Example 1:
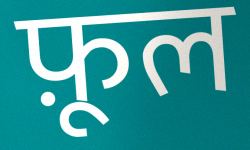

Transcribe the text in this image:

फ़ूल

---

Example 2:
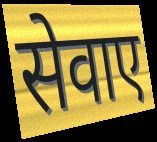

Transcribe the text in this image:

सेवाए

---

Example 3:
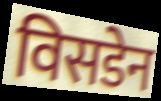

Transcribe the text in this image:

विसडेन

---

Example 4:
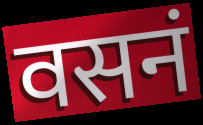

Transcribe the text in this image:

वसनं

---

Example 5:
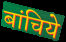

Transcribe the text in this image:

बांचिये